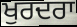
ਖੁਰਦਰਾ